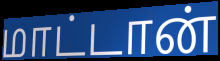
மாட்டான்